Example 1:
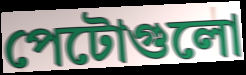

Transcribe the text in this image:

পেটোগুলো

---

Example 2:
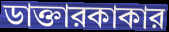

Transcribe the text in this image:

ডাক্তারকাকার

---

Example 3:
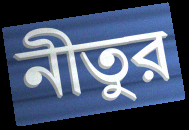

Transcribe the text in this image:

নীতুর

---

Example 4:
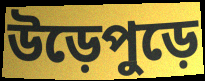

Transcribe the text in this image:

উড়েপুড়ে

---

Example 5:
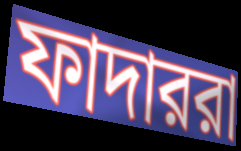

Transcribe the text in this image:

ফাদাররা